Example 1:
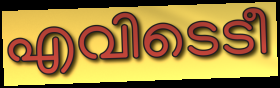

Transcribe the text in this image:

എവിടെടീ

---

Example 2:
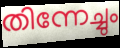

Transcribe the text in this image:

തിന്നേച്ചും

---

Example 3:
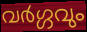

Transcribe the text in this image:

വർഗ്ഗവും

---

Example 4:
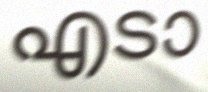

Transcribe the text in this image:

എടാ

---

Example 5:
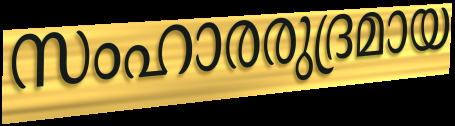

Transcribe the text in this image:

സംഹാരരുദ്രമായ